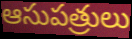
ఆసుపత్రులు